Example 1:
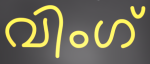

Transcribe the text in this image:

വിംഗ്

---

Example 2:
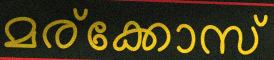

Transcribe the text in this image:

മര്ക്കോസ്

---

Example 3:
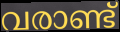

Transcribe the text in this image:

വരാണ്ട്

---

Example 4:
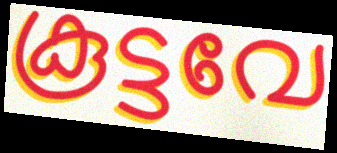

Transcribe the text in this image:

കൂട്ടവേ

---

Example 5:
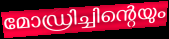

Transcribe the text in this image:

മോഡ്രിച്ചിന്റെയും